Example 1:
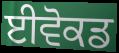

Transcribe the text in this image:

ਈਵੋਕਡ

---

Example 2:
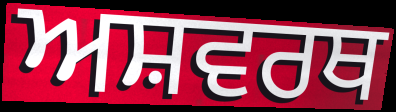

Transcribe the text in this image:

ਅਸ਼ਵਰਥ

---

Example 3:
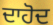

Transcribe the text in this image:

ਦਾਹੋਦ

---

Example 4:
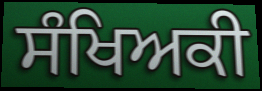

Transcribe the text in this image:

ਸੰਖਿਅਕੀ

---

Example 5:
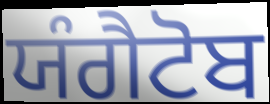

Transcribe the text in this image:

ਯੰਗੈਟੋਬ